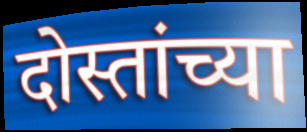
दोस्तांच्या